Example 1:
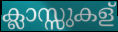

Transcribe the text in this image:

ക്ലാസ്സുകള്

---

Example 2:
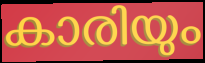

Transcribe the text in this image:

കാരിയും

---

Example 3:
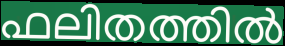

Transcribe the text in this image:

ഫലിതത്തിൽ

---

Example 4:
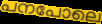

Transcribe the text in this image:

പനപോലെ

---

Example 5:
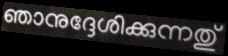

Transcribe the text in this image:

ഞാനുദ്ദേശിക്കുന്നതു്